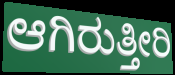
ಆಗಿರುತ್ತೀರಿ